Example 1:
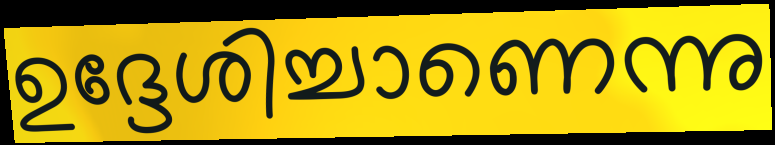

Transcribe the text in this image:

ഉദ്ദേശിച്ചാണെന്നു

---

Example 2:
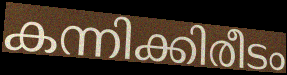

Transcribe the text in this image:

കന്നിക്കിരീടം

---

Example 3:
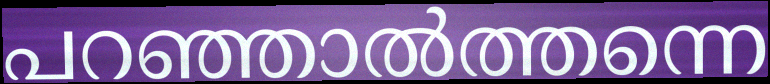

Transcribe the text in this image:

പറഞ്ഞാൽത്തന്നെ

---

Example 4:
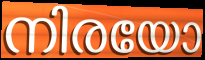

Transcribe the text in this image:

നിരയോ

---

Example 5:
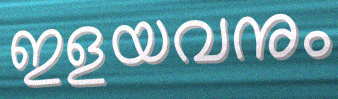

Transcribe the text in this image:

ഇളയവനും